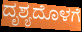
ದೃಶ್ಯದೊಳಗೆ